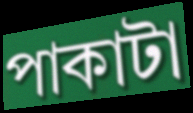
পাকাটা